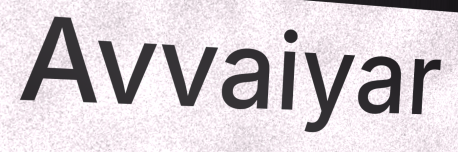
Avvaiyar